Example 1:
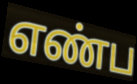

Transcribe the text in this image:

எண்ப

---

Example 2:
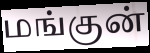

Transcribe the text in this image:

மங்குன்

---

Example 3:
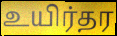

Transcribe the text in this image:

உயிர்தர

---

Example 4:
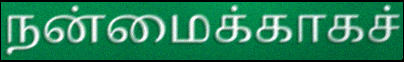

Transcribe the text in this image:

நன்மைக்காகச்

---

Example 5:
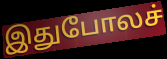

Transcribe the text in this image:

இதுபோலச்